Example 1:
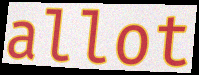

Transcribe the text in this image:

allot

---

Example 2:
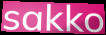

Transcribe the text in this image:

sakko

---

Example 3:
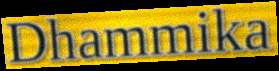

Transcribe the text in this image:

Dhammika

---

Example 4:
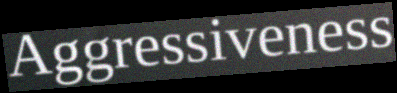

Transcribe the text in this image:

Aggressiveness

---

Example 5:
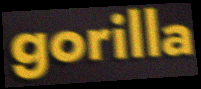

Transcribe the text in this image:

gorilla